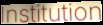
Institution